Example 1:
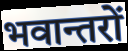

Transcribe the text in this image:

भवान्तरों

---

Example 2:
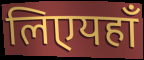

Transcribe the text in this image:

लिएयहाँ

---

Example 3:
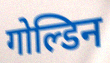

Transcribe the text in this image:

गोल्डिन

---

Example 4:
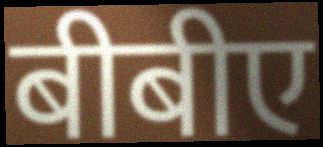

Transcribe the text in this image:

बीबीए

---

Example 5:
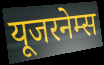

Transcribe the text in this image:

यूजरनेम्स